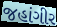
જહાંગીર